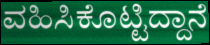
ವಹಿಸಿಕೊಟ್ಟಿದ್ದಾನೆ